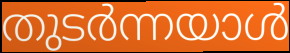
തുടർന്നയാൾ